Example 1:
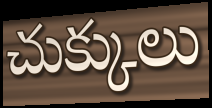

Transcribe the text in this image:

చుక్కులు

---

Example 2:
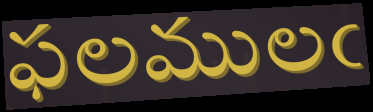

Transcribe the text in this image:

ఫలములఁ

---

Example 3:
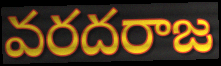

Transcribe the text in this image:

వరదరాజ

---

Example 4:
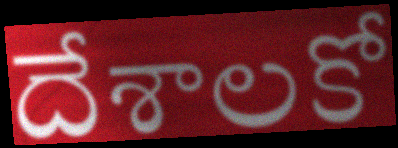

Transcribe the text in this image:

దేశాలకో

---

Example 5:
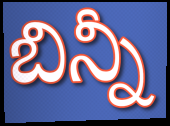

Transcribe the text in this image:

బిన్నీ